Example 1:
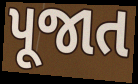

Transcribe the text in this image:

પૂજાત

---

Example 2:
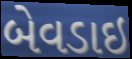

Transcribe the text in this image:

બેવડાઇ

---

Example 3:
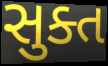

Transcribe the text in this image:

સુક્ત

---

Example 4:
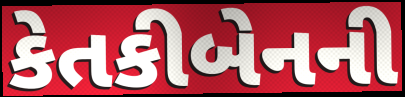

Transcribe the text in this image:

કેતકીબેનની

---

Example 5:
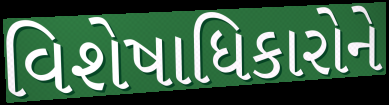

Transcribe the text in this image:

વિશેષાધિકારોને